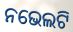
ନଭେଲଟି